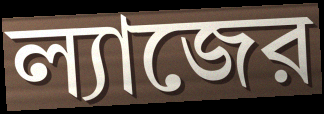
ল্যাজের